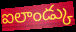
ఐలాండ్కు